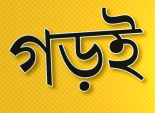
গড়ই